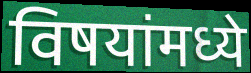
विषयांमध्ये